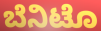
ಬೆನಿಟೊ